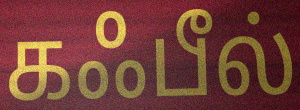
கஃபீல்